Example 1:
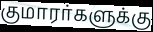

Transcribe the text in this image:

குமாரர்களுக்கு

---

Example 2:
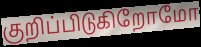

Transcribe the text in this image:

குறிப்பிடுகிறோமோ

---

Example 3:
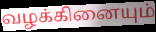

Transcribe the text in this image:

வழக்கினையும்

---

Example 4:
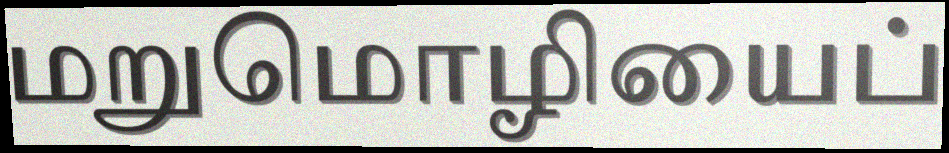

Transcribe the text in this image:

மறுமொழியைப்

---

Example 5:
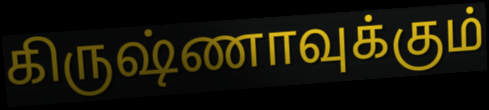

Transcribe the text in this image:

கிருஷ்ணாவுக்கும்